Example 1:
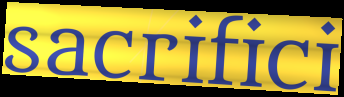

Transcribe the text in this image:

sacrifici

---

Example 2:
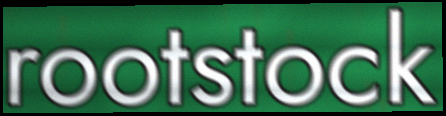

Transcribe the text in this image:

rootstock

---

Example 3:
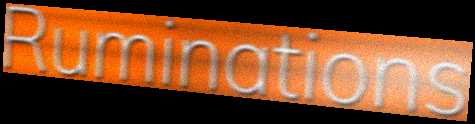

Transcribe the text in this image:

Ruminations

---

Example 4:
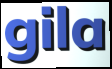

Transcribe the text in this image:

gila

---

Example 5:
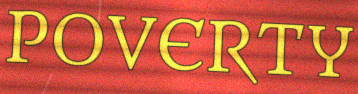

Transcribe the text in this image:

POVERTY